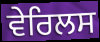
ਵੇਰਿਲਸ